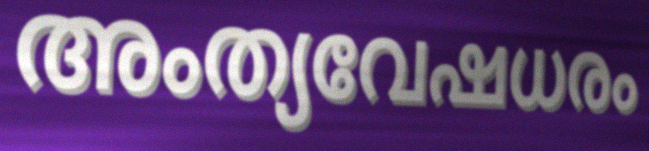
അംത്യവേഷധരം